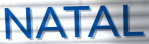
NATAL